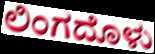
ಲಿಂಗದೊಳು